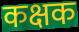
कक्षक